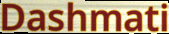
Dashmati